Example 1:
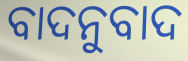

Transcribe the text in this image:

ବାଦନୁବାଦ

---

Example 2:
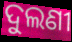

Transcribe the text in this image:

ଦୁଲଣୀ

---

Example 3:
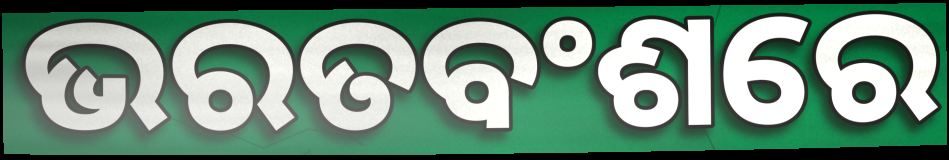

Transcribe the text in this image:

ଭରତବଂଶରେ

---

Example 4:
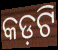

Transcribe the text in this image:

କଡ଼ଟି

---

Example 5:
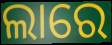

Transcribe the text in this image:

ଲାରେ